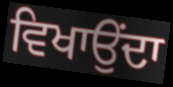
ਵਿਖਾਉਂਦਾ